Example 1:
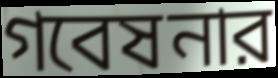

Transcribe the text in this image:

গবেষনার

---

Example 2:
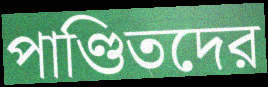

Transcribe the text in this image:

পাণ্ডিতদের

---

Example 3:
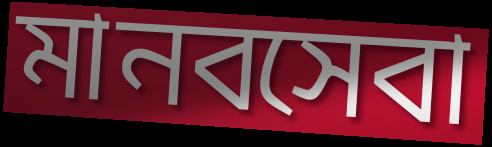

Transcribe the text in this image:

মানবসেবা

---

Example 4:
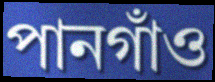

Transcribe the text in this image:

পানগাঁও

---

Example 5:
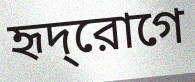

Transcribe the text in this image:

হৃদ্‌রোগে